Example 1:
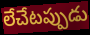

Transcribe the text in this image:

లేచేటప్పుడు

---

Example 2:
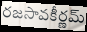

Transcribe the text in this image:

రజసావకీర్ణమ్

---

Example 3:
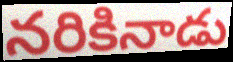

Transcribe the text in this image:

నరికినాడు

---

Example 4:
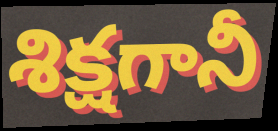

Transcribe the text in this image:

శిక్షగానీ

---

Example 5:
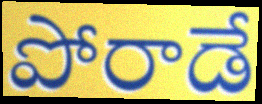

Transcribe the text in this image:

పోరాడే